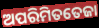
ଅପରିମିତତେଜା